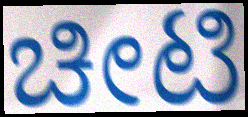
ಚೀಟಿ